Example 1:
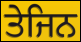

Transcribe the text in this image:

ਤੇਜਿਨ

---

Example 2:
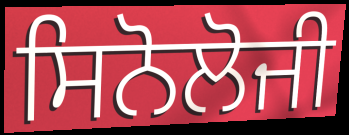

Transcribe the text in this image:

ਸਿਨੋਲੋਜੀ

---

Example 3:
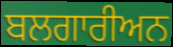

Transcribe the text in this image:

ਬਲਗਾਰੀਅਨ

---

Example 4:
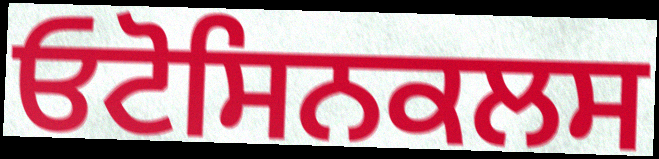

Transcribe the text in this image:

ਓਟੋਸਿਨਕਲਸ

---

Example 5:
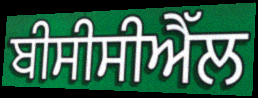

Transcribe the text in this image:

ਬੀਸੀਸੀਐੱਲ